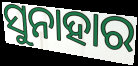
ସୁନାହାର